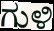
ಗುಳಿ